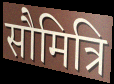
सौमित्रि